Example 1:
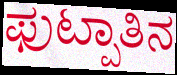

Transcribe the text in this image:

ಫುಟ್ಪಾತಿನ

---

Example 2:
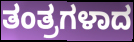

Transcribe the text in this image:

ತಂತ್ರಗಳಾದ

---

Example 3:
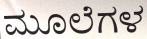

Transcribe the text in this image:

ಮೂಲೆಗಳ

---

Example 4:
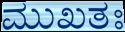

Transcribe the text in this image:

ಮುಖತಃ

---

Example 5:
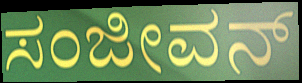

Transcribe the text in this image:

ಸಂಜೀವನ್